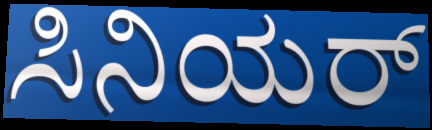
ಸಿನಿಯರ್